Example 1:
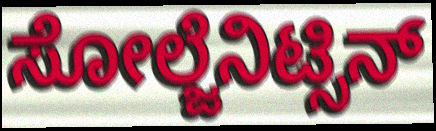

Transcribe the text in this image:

ಸೋಲ್ಜೆನಿಟ್ಸಿನ್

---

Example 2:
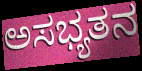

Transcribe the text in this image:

ಅಸಭ್ಯತನ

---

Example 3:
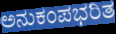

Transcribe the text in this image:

ಅನುಕಂಪಭರಿತ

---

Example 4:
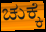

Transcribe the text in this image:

ಚುಕ್ಕೆ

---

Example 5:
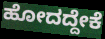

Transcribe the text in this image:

ಹೋದದ್ದೇಕೆ